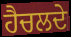
ਹੈਚਲਦੇ